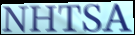
NHTSA